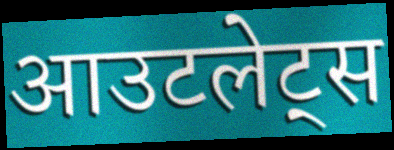
आउटलेट्स